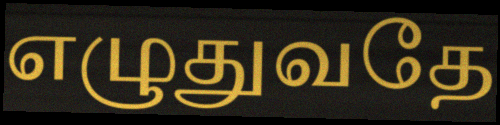
எழுதுவதே